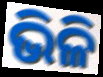
ଭିଳି